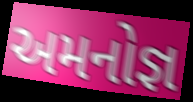
અમનોજ્ઞ